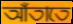
আঁতাতে